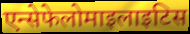
एन्सेफेलोमाइलाइटिस